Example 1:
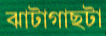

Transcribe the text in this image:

ঝাটাগাছটা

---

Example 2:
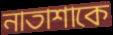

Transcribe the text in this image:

নাতাশাকে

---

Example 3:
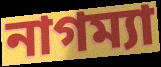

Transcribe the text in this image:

নাগম্যা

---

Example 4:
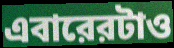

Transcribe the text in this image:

এবারেরটাও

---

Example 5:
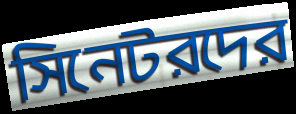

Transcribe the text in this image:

সিনেটরদের